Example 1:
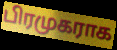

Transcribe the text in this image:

பிரமுகராக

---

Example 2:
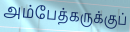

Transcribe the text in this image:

அம்பேத்கருக்குப்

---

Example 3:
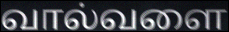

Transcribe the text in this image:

வால்வளை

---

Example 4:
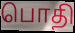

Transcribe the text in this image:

பொதி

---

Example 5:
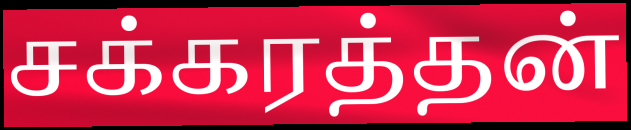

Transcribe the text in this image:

சக்கரத்தன்